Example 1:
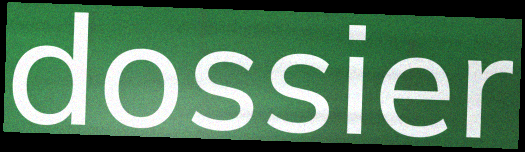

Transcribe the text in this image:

dossier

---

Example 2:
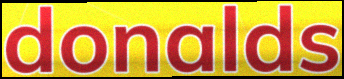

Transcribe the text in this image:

donalds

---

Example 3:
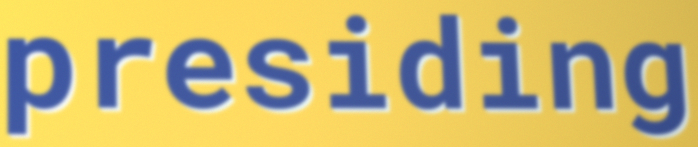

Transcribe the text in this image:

presiding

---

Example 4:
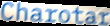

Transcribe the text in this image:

Charotar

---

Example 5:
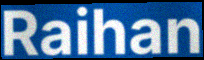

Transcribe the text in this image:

Raihan